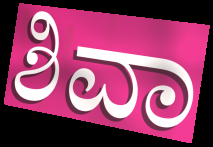
ಶಿವಾ